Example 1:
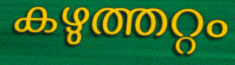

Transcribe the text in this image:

കഴുത്തറ്റം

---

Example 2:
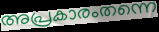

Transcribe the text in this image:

അപ്രകാരംതന്നെ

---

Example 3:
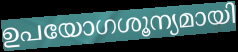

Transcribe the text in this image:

ഉപയോഗശൂന്യമായി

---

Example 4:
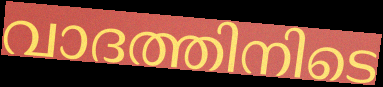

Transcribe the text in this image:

വാദത്തിനിടെ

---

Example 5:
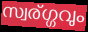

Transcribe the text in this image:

സ്വര്ഗ്ഗവും